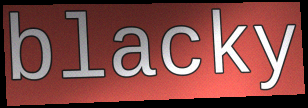
blacky